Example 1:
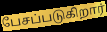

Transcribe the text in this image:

பேசப்படுகிறார்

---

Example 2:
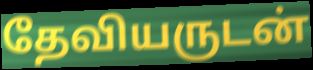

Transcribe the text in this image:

தேவியருடன்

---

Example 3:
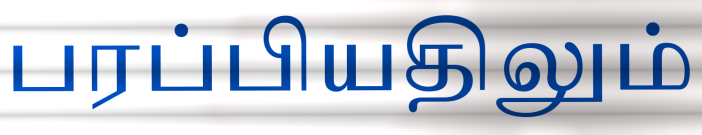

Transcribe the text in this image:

பரப்பியதிலும்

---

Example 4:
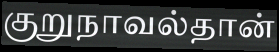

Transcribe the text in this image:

குறுநாவல்தான்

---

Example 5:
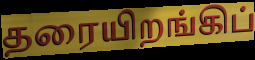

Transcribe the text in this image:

தரையிறங்கிப்